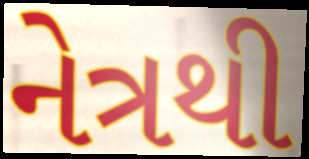
નેત્રથી